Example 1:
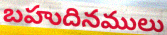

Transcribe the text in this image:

బహుదినములు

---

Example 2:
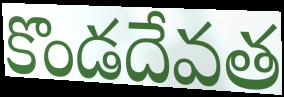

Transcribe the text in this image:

కొండదేవత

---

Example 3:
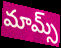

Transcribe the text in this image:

మామ్స్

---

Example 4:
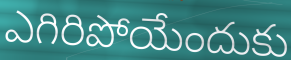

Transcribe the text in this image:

ఎగిరిపోయేందుకు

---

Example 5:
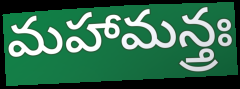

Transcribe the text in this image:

మహామన్త్రః